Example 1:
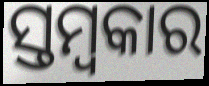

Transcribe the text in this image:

ସ୍ତମ୍ବକାର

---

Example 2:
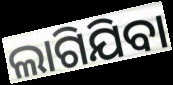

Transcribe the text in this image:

ଲାଗିଯିବା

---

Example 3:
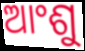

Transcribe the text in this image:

ଆଂଶୁ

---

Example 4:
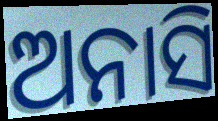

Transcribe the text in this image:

ଅନାସି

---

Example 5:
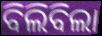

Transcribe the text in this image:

ବିଲିବିଲା